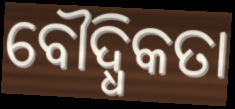
ବୌଦ୍ଧିକତା